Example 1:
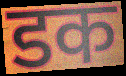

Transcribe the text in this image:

डक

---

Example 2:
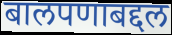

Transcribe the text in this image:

बालपणाबद्दल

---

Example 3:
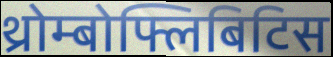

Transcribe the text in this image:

थ्रोम्बोफ्लिबिटिस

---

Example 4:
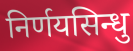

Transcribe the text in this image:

निर्णयसिन्धु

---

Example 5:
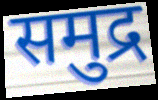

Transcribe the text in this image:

समुद्र